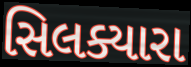
સિલક્યારા